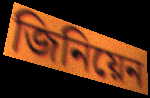
জিনিয়েন